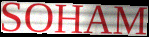
SOHAM